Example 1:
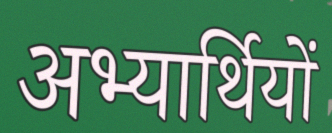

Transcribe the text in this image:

अभ्यार्थियों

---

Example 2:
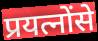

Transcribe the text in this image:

प्रयत्नोंसे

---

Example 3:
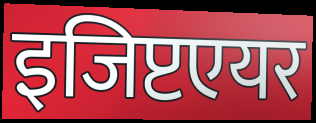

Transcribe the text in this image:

इजिप्टएयर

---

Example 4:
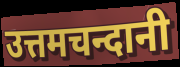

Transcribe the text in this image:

उत्तमचन्दानी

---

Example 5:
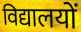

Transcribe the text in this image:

विद्यालयों